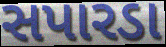
સપારડા